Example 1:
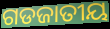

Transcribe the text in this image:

ଗଡଜାତୀୟ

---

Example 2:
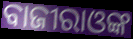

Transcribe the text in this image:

ବାଜୀରାଓଙ୍କ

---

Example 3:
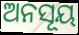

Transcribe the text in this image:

ଅନସୂୟ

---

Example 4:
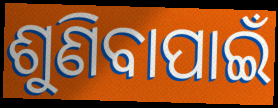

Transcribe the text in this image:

ଶୁଣିବାପାଇଁ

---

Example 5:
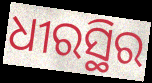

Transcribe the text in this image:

ଧୀରସ୍ଥିର